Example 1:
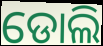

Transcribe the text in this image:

ଡୋଲି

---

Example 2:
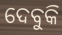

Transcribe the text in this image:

ଦେବୁକି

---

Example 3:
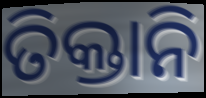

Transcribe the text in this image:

ତିକ୍ତାନି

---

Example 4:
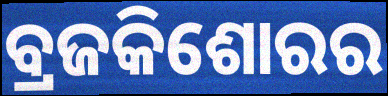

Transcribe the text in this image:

ବ୍ରଜକିଶୋରର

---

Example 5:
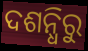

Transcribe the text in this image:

ଦଶନ୍ଧିରୁ